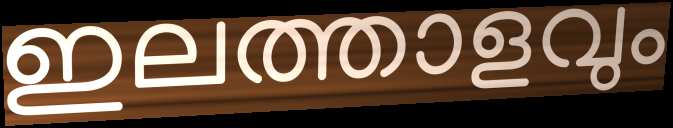
ഇലത്താളവും